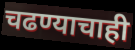
चढण्याचाही